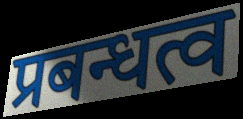
प्रबन्धत्व